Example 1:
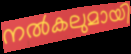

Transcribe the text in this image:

നൽകലുമായി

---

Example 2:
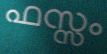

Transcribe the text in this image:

ഫസ്സം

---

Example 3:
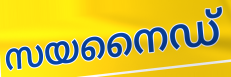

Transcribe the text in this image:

സയനൈഡ്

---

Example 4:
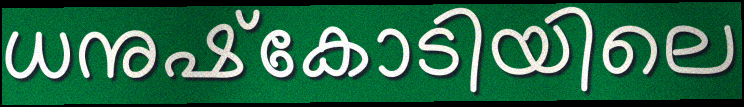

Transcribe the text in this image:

ധനുഷ്‌കോടിയിലെ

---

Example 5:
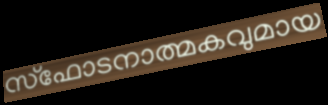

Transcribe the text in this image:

സ്ഫോടനാത്മകവുമായ